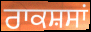
ਰਾਕਸ਼ਸਾਂ